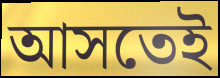
আসতেই